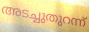
അടച്ചുതുറന്ന്